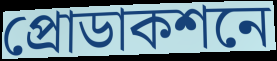
প্রোডাকশনে